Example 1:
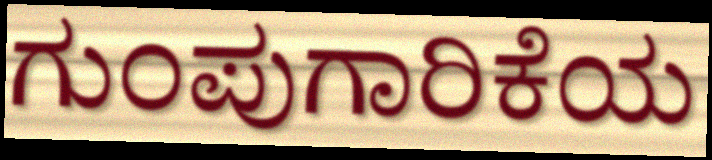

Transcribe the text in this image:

ಗುಂಪುಗಾರಿಕೆಯ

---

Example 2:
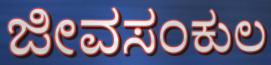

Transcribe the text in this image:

ಜೀವಸಂಕುಲ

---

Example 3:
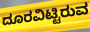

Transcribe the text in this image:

ದೂರವಿಟ್ಟಿರುವ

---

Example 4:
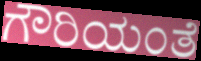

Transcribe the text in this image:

ಗೌರಿಯಂತೆ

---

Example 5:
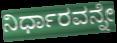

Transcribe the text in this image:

ನಿರ್ಧಾರವನ್ನೇ